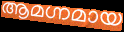
ആമഗ്നമായ